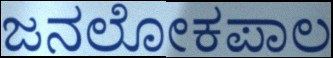
ಜನಲೋಕಪಾಲ